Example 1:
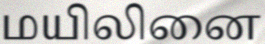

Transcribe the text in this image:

மயிலினை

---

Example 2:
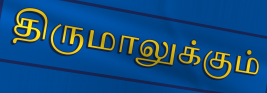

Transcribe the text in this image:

திருமாலுக்கும்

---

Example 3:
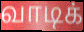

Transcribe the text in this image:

வாடிக்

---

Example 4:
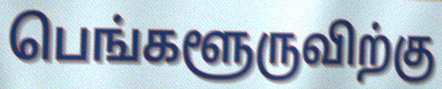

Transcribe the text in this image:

பெங்களூருவிற்கு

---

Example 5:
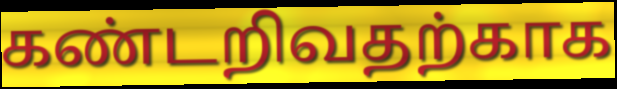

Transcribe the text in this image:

கண்டறிவதற்காக